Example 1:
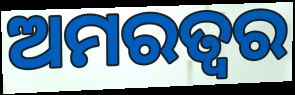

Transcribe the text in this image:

ଅମରତ୍ୱର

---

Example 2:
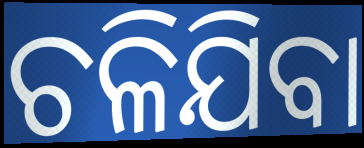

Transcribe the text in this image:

ଚଳିଯିବା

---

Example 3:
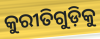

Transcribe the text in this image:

କୁରୀତିଗୁଡ଼ିକୁ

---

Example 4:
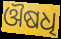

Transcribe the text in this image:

ଔଷଧି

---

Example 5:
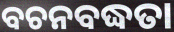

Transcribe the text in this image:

ବଚନବଦ୍ଧତା